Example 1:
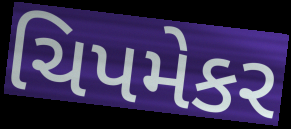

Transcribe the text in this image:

ચિપમેકર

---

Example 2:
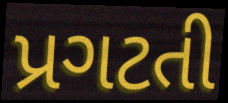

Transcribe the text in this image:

પ્રગટતી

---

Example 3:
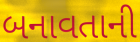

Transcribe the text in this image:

બનાવતાની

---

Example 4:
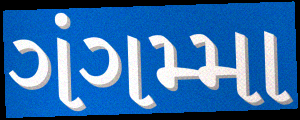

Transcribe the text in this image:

ગંગમ્મા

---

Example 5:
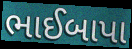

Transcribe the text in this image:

ભાઈબાપા